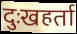
दुःखहर्ता